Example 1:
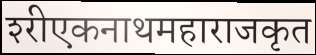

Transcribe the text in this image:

श्रीएकनाथमहाराजकृत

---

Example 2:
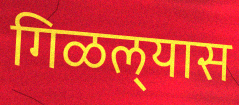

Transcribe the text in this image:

गिळल्यास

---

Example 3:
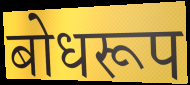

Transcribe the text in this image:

बोधरूप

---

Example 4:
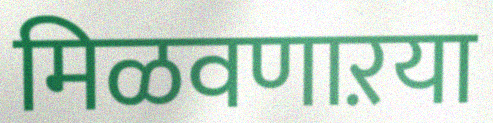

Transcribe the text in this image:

मिळवणाऱया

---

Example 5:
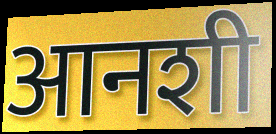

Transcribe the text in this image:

आनशी